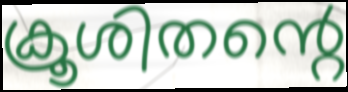
ക്രൂശിതന്റെ